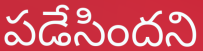
పడేసిందని